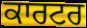
ਕਾਰਟਰ